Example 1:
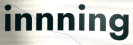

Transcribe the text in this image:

innning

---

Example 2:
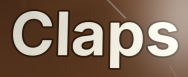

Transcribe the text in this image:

Claps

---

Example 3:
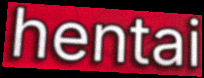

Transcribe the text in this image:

hentai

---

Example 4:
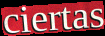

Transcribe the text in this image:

ciertas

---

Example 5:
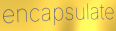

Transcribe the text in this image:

encapsulate